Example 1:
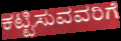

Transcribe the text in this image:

ಕಟ್ಟಿಸುವವರಿಗೆ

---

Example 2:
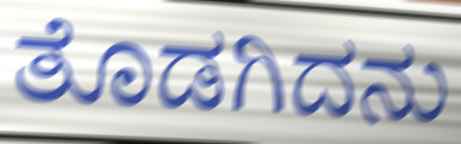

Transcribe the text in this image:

ತೊಡಗಿದನು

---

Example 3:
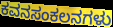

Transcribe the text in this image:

ಕವನಸಂಕಲನಗಳು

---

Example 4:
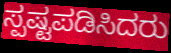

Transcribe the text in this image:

ಸ್ಪಷ್ಟಪಡಿಸಿದರು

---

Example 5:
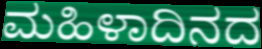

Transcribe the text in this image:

ಮಹಿಳಾದಿನದ